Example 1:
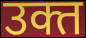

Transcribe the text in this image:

उक्‍त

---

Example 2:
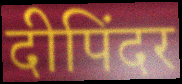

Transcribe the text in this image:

दीपिंदर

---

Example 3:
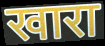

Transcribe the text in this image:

खारा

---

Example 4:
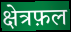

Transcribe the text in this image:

क्षेत्रफ़ल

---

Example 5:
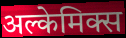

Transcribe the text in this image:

अल्केमिक्स